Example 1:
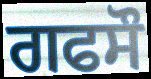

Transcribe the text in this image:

ਗਫਸੌ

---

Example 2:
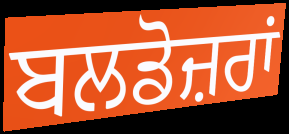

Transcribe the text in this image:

ਬਲਡੋਜ਼ਰਾਂ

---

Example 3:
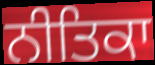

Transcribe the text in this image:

ਨੀਤਿਕਾ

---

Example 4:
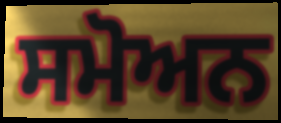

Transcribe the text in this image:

ਸਮੋਅਨ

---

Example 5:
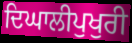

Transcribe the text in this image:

ਦਿਘਾਲੀਪੁਖੁਰੀ